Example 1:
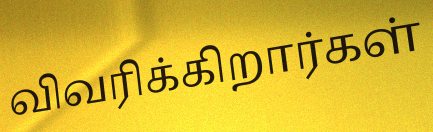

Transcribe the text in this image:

விவரிக்கிறார்கள்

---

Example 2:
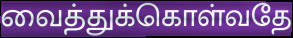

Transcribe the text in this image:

வைத்துக்கொள்வதே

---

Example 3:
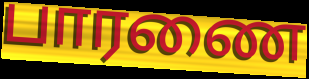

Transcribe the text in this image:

பாரணை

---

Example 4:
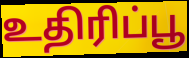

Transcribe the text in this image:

உதிரிப்பூ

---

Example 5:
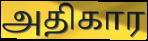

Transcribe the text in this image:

அதிகார